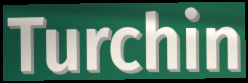
Turchin